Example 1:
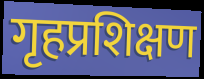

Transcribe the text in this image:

गृहप्रशिक्षण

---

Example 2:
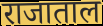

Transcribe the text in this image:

राजाताल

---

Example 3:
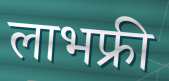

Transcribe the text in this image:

लाभफ्री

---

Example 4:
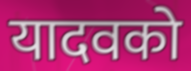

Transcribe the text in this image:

यादवको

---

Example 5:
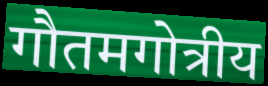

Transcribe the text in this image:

गौतमगोत्रीय